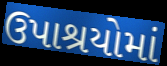
ઉપાશ્રયોમાં